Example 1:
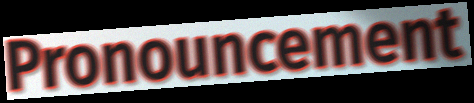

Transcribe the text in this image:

Pronouncement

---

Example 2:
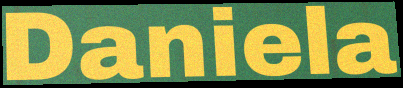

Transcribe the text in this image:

Daniela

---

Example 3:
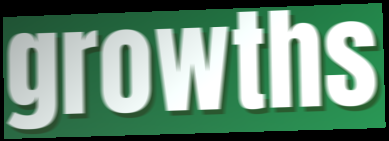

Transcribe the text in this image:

growths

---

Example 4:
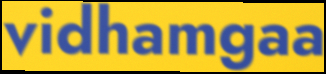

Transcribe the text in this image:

vidhamgaa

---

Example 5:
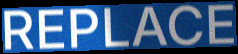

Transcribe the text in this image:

REPLACE